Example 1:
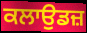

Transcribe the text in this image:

ਕਲਾਉਡਜ਼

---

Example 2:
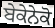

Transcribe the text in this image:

ਬੇਕੇਨੇਕੋ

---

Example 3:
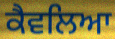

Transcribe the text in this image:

ਕੈਵਲਿਆ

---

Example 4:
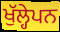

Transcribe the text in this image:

ਖੁੱਲ੍ਹੇਪਨ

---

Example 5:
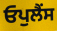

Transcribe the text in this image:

ਓਪੁਲੈਂਸ